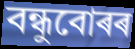
বন্ধুবোৰৰ